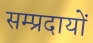
सम्प्रदायों